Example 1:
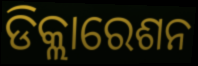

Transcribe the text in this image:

ଡିକ୍ଲାରେଶନ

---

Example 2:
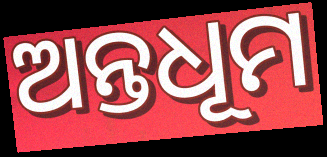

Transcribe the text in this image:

ଅନ୍ତଧୂମ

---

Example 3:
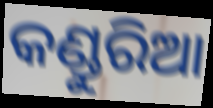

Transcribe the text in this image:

କଣ୍ଡୁରିଆ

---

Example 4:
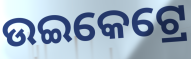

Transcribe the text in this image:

ଉଇକେଟ୍ରେ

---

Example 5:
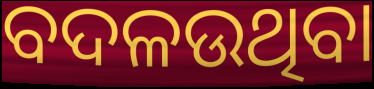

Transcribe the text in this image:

ବଦଳଉଥିବା